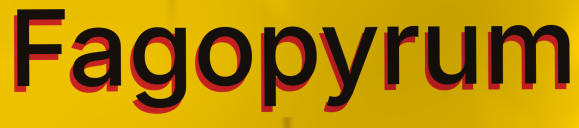
Fagopyrum